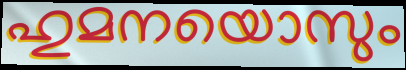
ഹുമനയൊസും